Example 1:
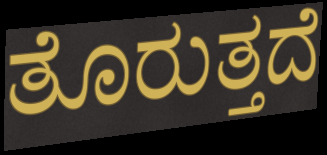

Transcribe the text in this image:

ತೊರುತ್ತದೆ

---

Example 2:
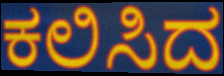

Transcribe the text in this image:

ಕಲಿಸಿದ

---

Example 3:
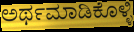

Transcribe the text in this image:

ಅರ್ಥಮಾಡಿಕೊಳ್ಳಿ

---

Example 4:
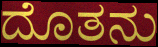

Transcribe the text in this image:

ದೊತನು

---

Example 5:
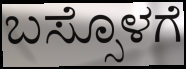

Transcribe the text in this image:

ಬಸ್ಸೊಳಗೆ